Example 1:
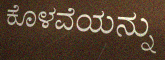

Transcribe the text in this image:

ಕೊಳವೆಯನ್ನು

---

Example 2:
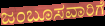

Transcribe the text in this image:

ಜಂಬೂಸವಾರಿಗೆ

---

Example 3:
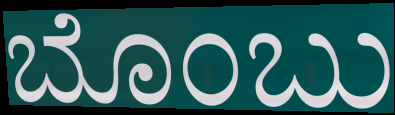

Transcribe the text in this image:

ಬೊಂಬು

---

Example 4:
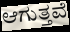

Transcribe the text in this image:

ಆಗುತ್ತವೆ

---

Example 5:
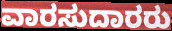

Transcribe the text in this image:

ವಾರಸುದಾರರು